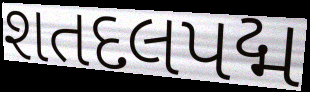
શતદલપદ્મ